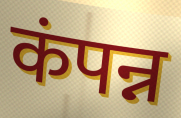
कंपन्न